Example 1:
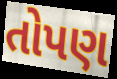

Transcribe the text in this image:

તોપણ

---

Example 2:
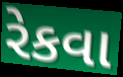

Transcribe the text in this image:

રેકવા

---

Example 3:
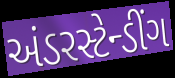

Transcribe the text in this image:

અંડરસ્ટેન્ડીંગ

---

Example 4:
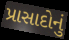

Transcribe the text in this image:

પ્રાસાદોનું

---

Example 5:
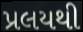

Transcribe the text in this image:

પ્રલયથી